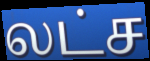
லட்ச